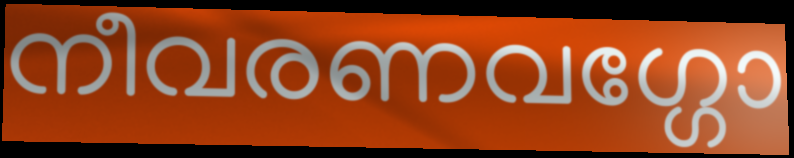
നീവരണവഗ്ഗോ